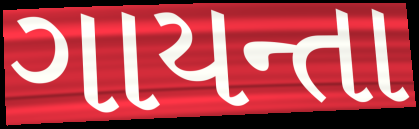
ગાયન્તા